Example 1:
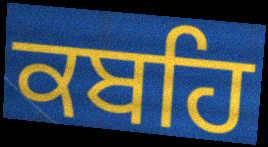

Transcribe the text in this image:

ਕਬਹਿ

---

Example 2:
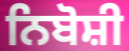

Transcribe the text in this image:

ਨਿਬੋਸ਼ੀ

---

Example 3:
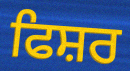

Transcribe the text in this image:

ਫਿਸ਼ਰ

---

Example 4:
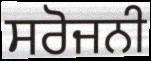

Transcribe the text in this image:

ਸਰੋਜਨੀ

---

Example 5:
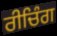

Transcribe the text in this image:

ਰੀਚਿੰਗ